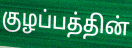
குழப்பத்தின்